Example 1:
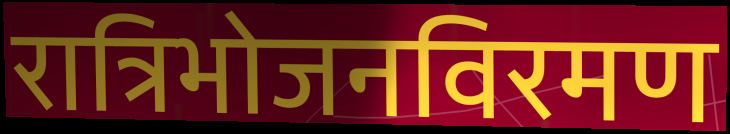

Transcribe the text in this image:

रात्रिभोजनविरमण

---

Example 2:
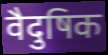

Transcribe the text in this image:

वैदुषिक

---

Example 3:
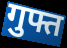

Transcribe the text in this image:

गुफ्त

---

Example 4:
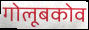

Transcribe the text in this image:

गोलूबकोव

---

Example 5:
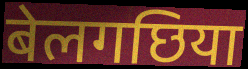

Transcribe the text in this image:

बेलगछिया